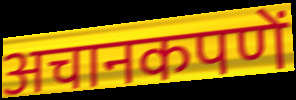
अचानकपणें